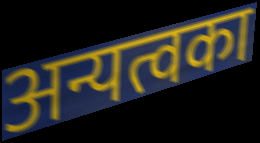
अन्यत्वका